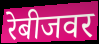
रेबीजवर